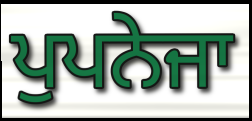
ਪੁਪਨੇਜਾ